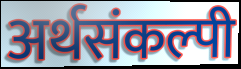
अर्थसंकल्पी